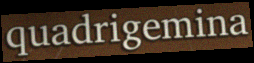
quadrigemina